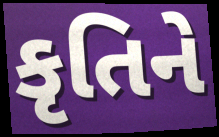
કૃતિને